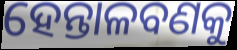
ହେନ୍ତାଳବଣକୁ